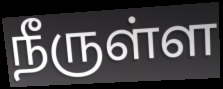
நீருள்ள